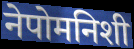
नेपोमनिशी